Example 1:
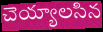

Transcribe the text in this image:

చెయ్యాలసిన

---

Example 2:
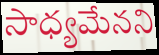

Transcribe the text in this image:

సాధ్యమేనని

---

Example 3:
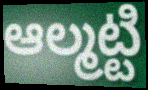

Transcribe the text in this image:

ఆల్మట్టి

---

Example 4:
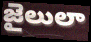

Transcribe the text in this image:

జైలులా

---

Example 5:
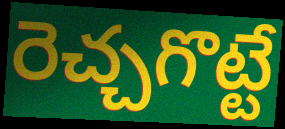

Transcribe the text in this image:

రెచ్చగొట్టే